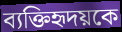
ব্যক্তিহৃদয়কে